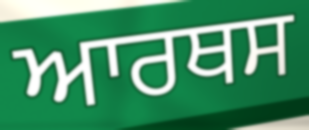
ਆਰਥਸ